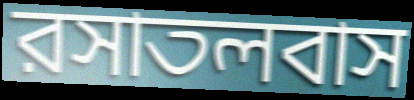
রসাতলবাস